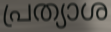
പ്രത്യാശ